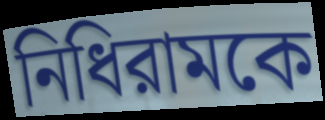
নিধিরামকে